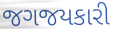
જગજયકારી